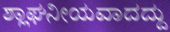
ಶ್ಲಾಘನೀಯವಾದದ್ದು